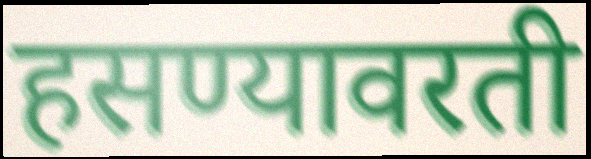
हसण्यावरती